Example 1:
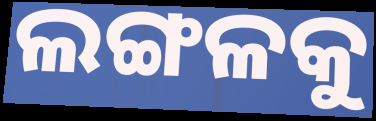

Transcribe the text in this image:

ଲଙ୍ଗଳକୁ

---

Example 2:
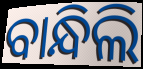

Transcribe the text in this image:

ବାନ୍ଧିଲି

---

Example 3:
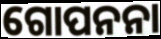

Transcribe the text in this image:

ଗୋପନନା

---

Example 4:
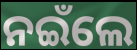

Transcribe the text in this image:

ନଇଁଲେ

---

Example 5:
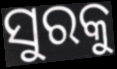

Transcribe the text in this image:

ସୁରକୁ